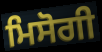
ਮਿਸੋਗੀ